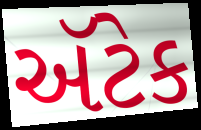
ઍટેક